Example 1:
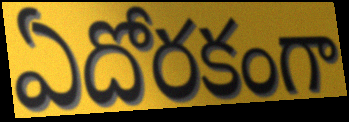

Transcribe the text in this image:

ఏదోరకంగా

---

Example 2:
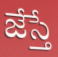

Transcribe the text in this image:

జేస్తే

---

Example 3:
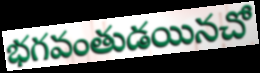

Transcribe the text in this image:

భగవంతుడయినచో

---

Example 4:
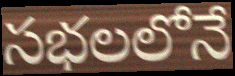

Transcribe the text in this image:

సభలలోనే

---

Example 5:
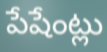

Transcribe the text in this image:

పేషేంట్లు